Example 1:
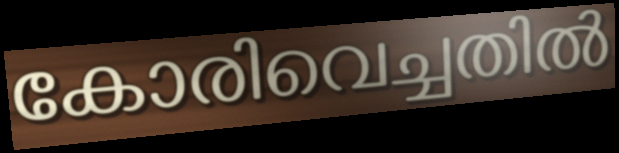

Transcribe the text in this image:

കോരിവെച്ചതിൽ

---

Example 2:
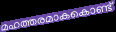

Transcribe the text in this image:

മഹത്തരമാകകൊണ്ട്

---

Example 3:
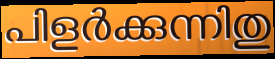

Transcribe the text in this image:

പിളർക്കുന്നിതു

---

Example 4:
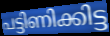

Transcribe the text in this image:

പട്ടിണിക്കിട്ട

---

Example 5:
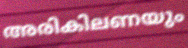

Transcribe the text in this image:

അരികിലണയും